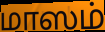
மாஸம்